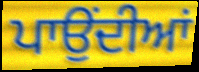
ਪਾਉਂਦੀਆਂ